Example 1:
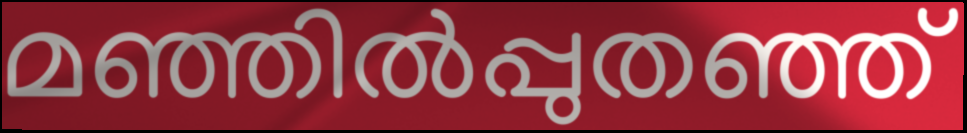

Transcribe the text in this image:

മഞ്ഞിൽപ്പുതഞ്ഞ്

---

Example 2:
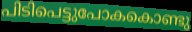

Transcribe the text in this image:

പിടിപെട്ടുപോകകൊണ്ടു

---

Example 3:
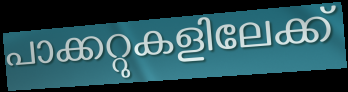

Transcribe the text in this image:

പാക്കറ്റുകളിലേക്ക്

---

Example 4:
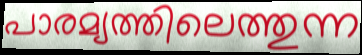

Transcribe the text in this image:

പാരമ്യത്തിലെത്തുന്ന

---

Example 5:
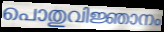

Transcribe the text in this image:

പൊതുവിജ്ഞാനം